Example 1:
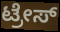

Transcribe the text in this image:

ಟ್ರೇಸ್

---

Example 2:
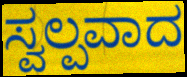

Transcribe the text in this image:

ಸ್ವಲ್ಪವಾದ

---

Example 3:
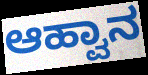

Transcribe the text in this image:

ಆಹ್ವಾನ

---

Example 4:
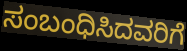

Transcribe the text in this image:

ಸಂಬಂಧಿಸಿದವರಿಗೆ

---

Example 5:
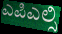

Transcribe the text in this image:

ಎಪಿಎಲ್ಸಿ